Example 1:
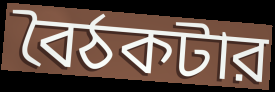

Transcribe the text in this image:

বৈঠকটার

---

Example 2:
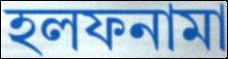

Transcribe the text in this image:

হলফনামা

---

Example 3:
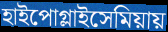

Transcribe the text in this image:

হাইপোগ্লাইসেমিয়ায়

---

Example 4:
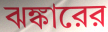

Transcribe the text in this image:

ঝঙ্কারের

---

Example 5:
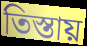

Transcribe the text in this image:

তিস্তায়